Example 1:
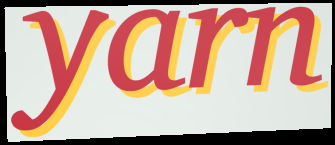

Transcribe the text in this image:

yarn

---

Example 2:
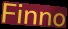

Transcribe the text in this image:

Finno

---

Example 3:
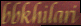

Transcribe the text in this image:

bbkhilari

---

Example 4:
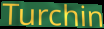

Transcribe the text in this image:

Turchin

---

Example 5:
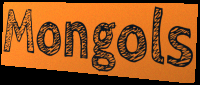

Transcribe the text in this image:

Mongols